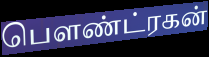
பௌண்ட்ரகன்